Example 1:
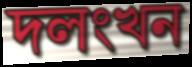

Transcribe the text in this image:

দলংখন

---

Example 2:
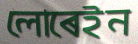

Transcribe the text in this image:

লোৰেইন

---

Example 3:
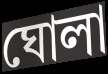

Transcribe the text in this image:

ঘোলা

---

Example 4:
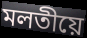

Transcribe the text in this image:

মলতীয়ে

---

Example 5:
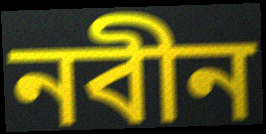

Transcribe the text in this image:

নবীন